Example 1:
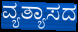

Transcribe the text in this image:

ವ್ಯತ್ಯಾಸದ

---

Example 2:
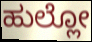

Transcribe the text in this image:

ಹುಲ್ಲೋ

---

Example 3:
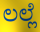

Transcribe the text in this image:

ಲಲ್ಲೆ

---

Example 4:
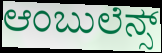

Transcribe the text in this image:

ಆಂಬುಲೆನ್ಸ್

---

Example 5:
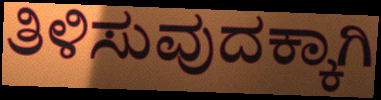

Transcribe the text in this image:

ತಿಳಿಸುವುದಕ್ಕಾಗಿ